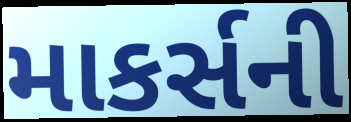
માકર્સની